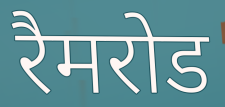
रैमरोड